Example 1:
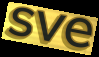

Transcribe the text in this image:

sve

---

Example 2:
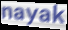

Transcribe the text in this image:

nayak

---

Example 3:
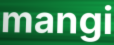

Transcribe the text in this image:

mangi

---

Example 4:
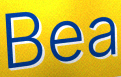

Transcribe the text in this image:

Bea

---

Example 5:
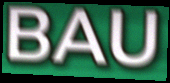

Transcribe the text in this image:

BAU